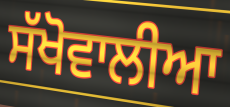
ਸੱਖੋਵਾਲੀਆ